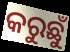
କରୁଛୁଁ